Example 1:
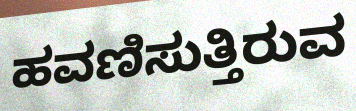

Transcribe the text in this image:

ಹವಣಿಸುತ್ತಿರುವ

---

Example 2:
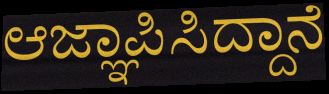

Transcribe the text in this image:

ಆಜ್ಞಾಪಿಸಿದ್ದಾನೆ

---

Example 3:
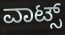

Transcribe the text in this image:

ವಾಟ್ಸ್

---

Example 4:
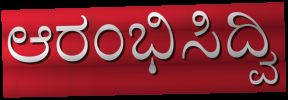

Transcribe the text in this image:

ಆರಂಭಿಸಿದ್ವಿ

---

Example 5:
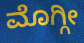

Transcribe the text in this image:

ಮೊಗ್ಗೀ